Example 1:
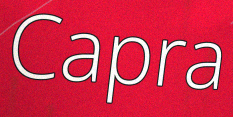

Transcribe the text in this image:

Capra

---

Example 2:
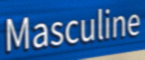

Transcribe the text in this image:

Masculine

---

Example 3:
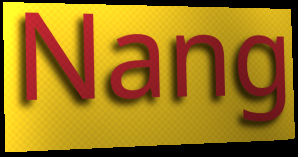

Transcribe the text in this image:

Nang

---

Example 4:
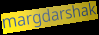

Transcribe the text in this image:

margdarshak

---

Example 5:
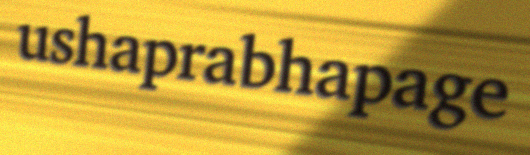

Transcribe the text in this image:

ushaprabhapage